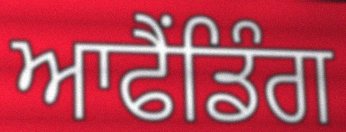
ਆਫੈਂਡਿੰਗ